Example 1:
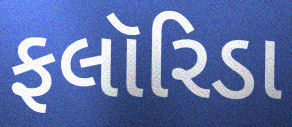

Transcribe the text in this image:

ફલૉરિડા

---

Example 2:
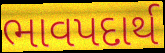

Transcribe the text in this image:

ભાવપદાર્થ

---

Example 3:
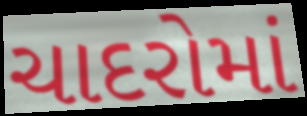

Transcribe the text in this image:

ચાદરોમાં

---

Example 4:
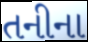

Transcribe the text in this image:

તનીના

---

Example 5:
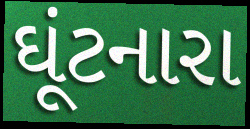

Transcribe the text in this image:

ઘૂંટનારા